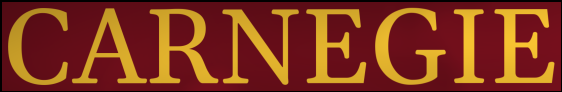
CARNEGIE